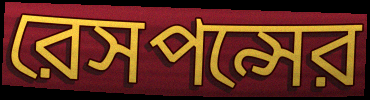
রেসপন্সের